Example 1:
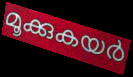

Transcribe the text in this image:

മൂക്കുകയർ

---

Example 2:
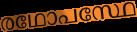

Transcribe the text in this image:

രഥോപസ്ഥേ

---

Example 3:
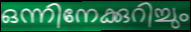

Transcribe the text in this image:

ഒന്നിനേക്കുറിച്ചും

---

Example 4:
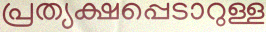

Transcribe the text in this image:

പ്രത്യക്ഷപ്പെടാറുള്ള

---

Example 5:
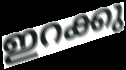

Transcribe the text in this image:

ഇറക്കു